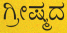
ಗ್ರೀಷ್ಮದ